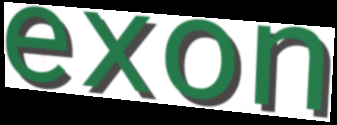
exon